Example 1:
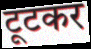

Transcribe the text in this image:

टूटकर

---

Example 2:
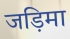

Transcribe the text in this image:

जड़िमा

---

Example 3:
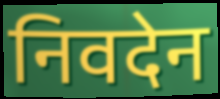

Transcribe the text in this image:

निवदेन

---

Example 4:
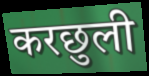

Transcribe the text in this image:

करछुली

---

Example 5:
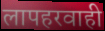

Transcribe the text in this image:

लापहरवाही